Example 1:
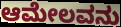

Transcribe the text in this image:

ಆಮೇಲವನು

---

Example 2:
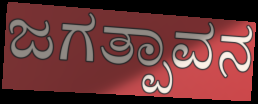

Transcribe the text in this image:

ಜಗತ್ಪಾವನ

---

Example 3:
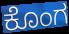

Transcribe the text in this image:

ಕೊಂಗ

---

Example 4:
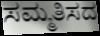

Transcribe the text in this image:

ಸಮ್ಮತಿಸದ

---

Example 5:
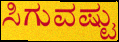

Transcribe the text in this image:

ಸಿಗುವಷ್ಟು